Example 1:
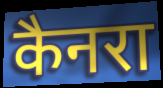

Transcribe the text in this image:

कैनरा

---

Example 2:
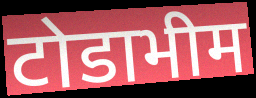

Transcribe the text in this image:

टोडाभीम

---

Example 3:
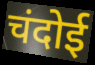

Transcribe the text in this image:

चंदोई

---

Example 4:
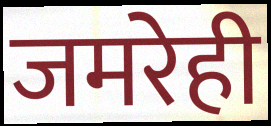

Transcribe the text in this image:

जमरेही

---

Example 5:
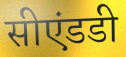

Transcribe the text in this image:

सीएंडडी